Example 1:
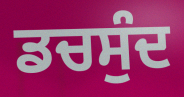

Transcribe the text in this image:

ਡਚਸੁੰਦ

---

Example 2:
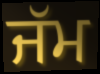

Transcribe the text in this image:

ਜੱਮ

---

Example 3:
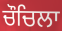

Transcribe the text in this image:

ਚੌਚਿਲਾ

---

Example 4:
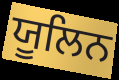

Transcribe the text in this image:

ਯੂਲਿਨ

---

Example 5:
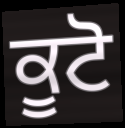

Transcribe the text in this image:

ਕੂਟੋ